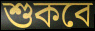
শুকবে